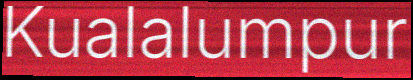
Kualalumpur